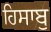
ਹਿਸਾਬੁ